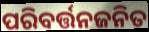
ପରିବର୍ତ୍ତନଜନିତ